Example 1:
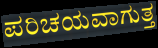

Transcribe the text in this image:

ಪರಿಚಯವಾಗುತ್ತ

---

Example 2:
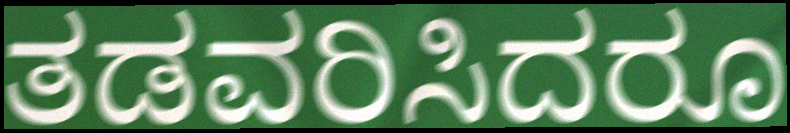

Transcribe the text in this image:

ತಡವರಿಸಿದರೂ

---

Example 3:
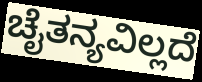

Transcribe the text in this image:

ಚೈತನ್ಯವಿಲ್ಲದೆ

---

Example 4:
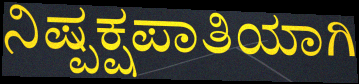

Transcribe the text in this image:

ನಿಷ್ಪಕ್ಷಪಾತಿಯಾಗಿ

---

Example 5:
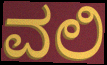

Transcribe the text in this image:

ವಲಿ